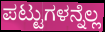
ಪಟ್ಟುಗಳನ್ನೆಲ್ಲ